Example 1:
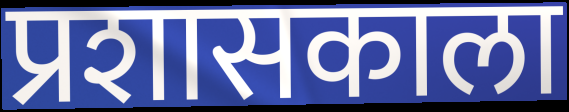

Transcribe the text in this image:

प्रशासकाला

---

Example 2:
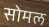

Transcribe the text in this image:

सोमल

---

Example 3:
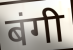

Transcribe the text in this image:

बंगी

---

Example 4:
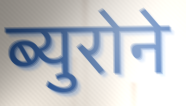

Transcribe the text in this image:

ब्युरोने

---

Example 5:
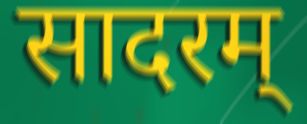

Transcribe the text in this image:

सादरम्